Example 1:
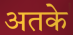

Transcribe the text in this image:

अतके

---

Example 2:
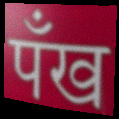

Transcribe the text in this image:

पँख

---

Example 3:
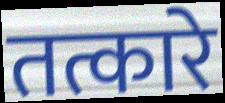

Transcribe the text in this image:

तत्कारे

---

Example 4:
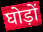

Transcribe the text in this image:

घोड़ों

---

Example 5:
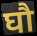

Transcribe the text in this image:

घौ